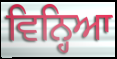
ਵਿਨ੍ਹਿਆ